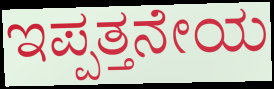
ಇಪ್ಪತ್ತನೇಯ